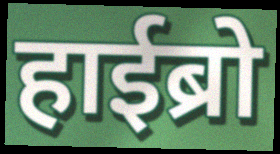
हाईब्रो